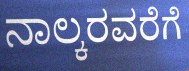
ನಾಲ್ಕರವರೆಗೆ